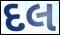
દલ